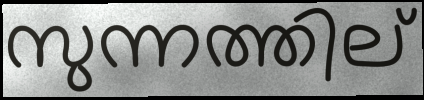
സുന്നത്തില്